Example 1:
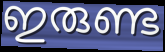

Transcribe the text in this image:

ഇരുണ്ട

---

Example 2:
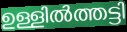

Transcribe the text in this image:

ഉള്ളിൽത്തട്ടി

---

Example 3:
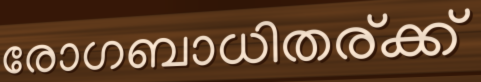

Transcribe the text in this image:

രോഗബാധിതര്ക്ക്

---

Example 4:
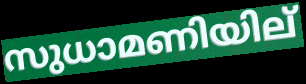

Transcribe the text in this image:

സുധാമണിയില്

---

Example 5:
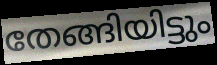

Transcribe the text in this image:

തേങ്ങിയിട്ടും